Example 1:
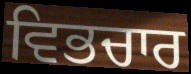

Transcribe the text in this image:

ਵਿਭਚਾਰ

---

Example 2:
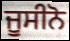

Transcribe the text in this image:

ਜੂਸੀਨੋ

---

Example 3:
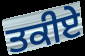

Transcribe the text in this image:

ਤਕੀਏ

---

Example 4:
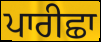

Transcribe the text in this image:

ਪਾਰੀਛਾ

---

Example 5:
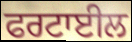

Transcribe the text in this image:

ਫਰਟਾਈਲ